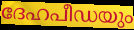
ദേഹപീഡയും